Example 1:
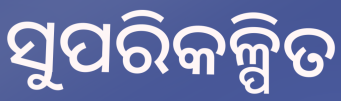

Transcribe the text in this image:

ସୁପରିକଳ୍ପିତ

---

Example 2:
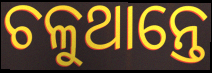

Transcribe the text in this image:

ଚଳୁଥାନ୍ତେ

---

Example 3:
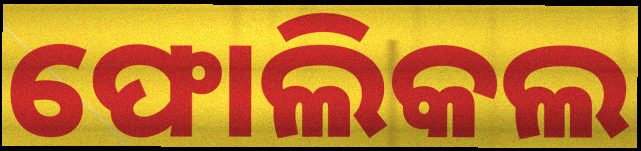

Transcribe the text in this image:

ଫୋଲିକଲ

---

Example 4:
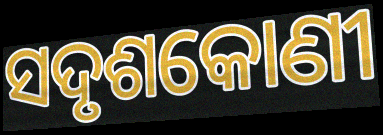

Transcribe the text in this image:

ସଦୃଶକୋଣୀ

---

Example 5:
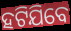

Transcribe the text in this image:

ହଟିଯିବେ